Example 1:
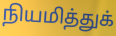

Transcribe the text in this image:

நியமித்துக்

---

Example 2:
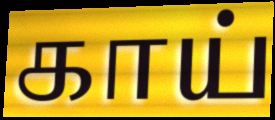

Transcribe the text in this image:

காய்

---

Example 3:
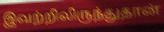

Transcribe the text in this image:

இவற்றிலிருந்துதான்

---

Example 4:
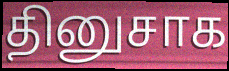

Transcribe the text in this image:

தினுசாக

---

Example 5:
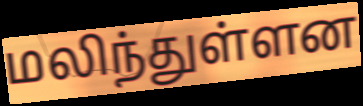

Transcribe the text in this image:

மலிந்துள்ளன